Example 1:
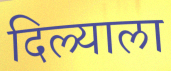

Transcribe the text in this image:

दिल्याला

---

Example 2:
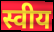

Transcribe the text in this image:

स्वीय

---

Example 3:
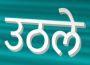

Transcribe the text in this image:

उठले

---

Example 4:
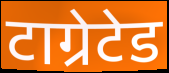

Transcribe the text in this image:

टाग्रेटेड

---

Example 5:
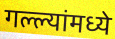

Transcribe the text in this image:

गल्ल्यांमध्ये